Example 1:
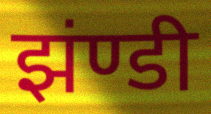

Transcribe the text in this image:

झंण्डी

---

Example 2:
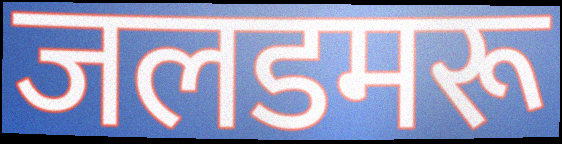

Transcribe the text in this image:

जलडमरू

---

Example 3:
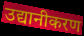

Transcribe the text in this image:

उद्यानीकरण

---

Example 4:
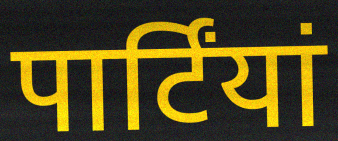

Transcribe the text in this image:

पार्टिंयां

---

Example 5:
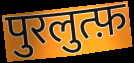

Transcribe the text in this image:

पुरलुत्फ़